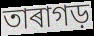
তাৰাগড়